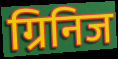
ग्रिनिज